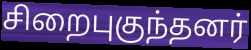
சிறைபுகுந்தனர்